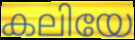
കലിയേ